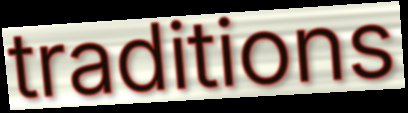
traditions